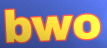
bwo